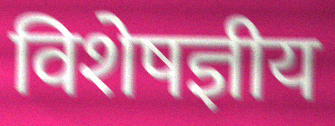
विशेषज्ञीय